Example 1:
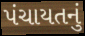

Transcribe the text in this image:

પંચાયતનું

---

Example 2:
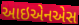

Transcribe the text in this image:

આઇએનએસ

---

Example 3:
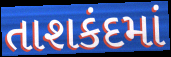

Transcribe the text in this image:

તાશકંદમાં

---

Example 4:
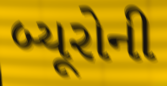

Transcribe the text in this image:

બ્યૂરોની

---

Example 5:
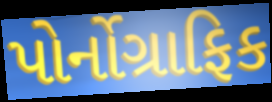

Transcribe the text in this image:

પોર્નોગ્રાફિક